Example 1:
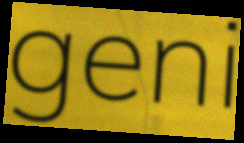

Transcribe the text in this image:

geni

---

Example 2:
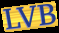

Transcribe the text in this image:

LVB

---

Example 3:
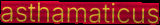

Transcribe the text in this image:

asthamaticus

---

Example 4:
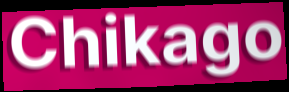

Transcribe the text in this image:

Chikago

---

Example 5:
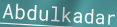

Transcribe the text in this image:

Abdulkadar